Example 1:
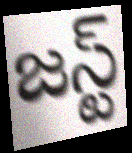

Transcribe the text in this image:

జస్ట్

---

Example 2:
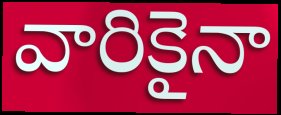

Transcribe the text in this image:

వారికైనా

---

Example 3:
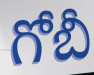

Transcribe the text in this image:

గోబీ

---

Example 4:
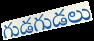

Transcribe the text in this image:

గుడగుడలు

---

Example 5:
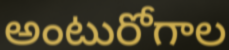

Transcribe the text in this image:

అంటురోగాల